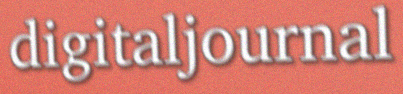
digitaljournal